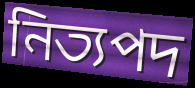
নিত্যপদ